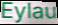
Eylau